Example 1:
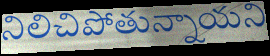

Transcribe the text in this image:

నిలిచిపోతున్నాయని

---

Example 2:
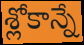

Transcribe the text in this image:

శ్లోకాన్నే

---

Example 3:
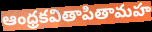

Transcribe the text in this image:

ఆంధ్రకవితాపితామహ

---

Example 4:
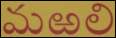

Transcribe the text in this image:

మఱలి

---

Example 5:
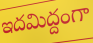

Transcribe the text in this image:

ఇదమిద్దంగా